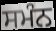
ਸਮੰਨ